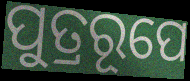
ପୁତ୍ରରୂପେ